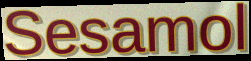
Sesamol